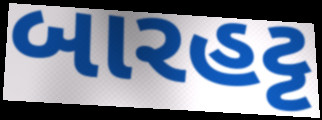
બારહટ્ટ